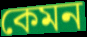
কেমন